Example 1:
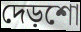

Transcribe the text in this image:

দেড়শো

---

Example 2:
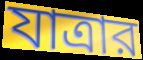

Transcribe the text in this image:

যাত্রার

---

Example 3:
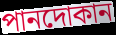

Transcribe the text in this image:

পানদোকান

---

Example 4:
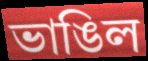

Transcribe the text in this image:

ভাঙিল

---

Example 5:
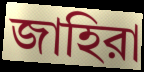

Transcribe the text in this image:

জাহিরা